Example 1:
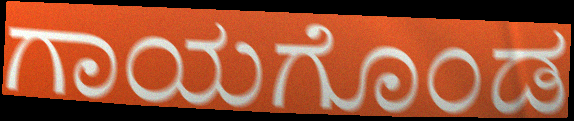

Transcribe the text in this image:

ಗಾಯಗೊಂಡ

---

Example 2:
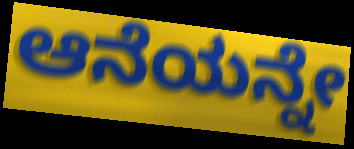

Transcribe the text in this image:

ಆನೆಯನ್ನೇ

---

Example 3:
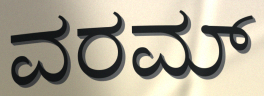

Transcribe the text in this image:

ವರಮ್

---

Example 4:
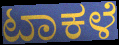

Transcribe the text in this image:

ಟಾಕಳೆ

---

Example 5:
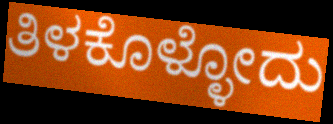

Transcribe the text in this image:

ತಿಳಕೊಳ್ಳೋದು